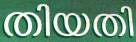
തിയതി